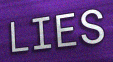
LIES